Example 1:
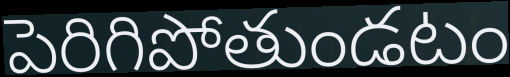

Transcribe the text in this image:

పెరిగిపోతుండటం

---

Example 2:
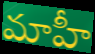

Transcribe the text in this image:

మాహీ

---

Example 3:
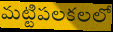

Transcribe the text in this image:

మట్టిపలకలలో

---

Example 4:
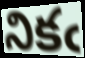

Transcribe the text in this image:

నికఁ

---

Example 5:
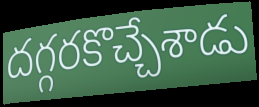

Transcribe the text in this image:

దగ్గరకొచ్చేశాడు